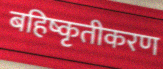
बहिष्कृतीकरण